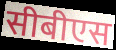
सीबीएस